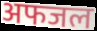
अफजल